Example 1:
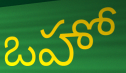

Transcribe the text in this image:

ఒహో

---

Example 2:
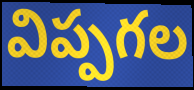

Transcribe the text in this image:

విప్పగల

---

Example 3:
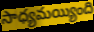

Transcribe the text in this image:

సాధ్యమయ్యింది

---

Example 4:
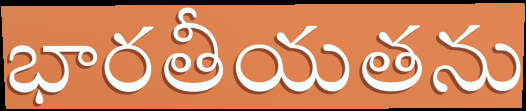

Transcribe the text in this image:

భారతీయతను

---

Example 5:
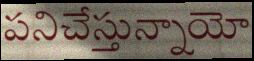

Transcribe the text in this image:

పనిచేస్తున్నాయో